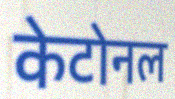
केटोनल